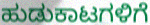
ಹುಡುಕಾಟಗಳಿಗೆ